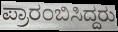
ಪ್ರಾರಂಬಿಸಿದ್ದರು